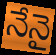
నేనై